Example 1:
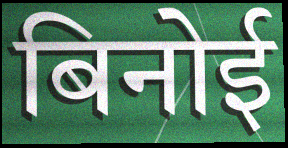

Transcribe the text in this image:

बिनोई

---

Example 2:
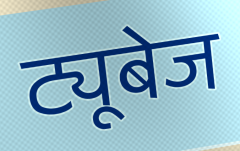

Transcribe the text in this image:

ट्यूबेज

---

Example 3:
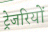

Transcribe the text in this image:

ट्रेजरियों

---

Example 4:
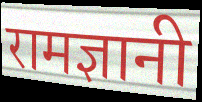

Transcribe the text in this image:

रामज्ञानी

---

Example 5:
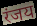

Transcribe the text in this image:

रंजय